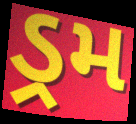
ડ્રમ